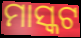
ମାସ୍କଟ